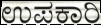
ಉಪಕಾರಿ